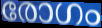
രോഗം